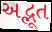
અદ્ભૂત